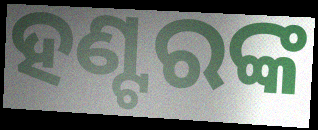
ହଣ୍ଟରଙ୍କ